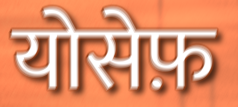
योसेफ़